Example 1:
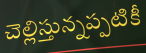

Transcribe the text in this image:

చెల్లిస్తున్నప్పటికీ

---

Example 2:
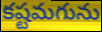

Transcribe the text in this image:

కష్టమగును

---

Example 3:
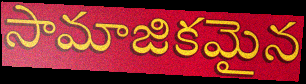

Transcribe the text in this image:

సామాజికమైన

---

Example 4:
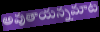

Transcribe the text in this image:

అవుతాయన్నమాట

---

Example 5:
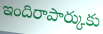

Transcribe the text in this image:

ఇందిరాపార్కుకు